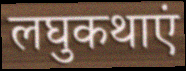
लघुकथाएं